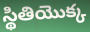
స్థితియొక్క